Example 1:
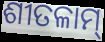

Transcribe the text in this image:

ଶୀତଳାମ୍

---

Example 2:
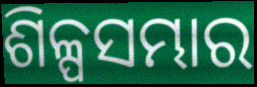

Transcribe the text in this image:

ଶିଳ୍ପସମ୍ଭାର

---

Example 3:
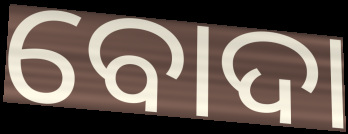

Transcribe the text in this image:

ବୋଦା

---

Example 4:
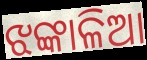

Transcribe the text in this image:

ଝଙ୍କାଳିଆ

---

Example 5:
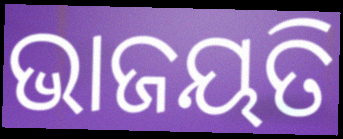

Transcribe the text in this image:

ଭାଜୟତି